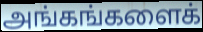
அங்கங்களைக்